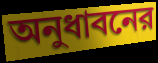
অনুধাবনের